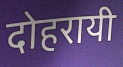
दोहरायी